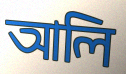
আলি